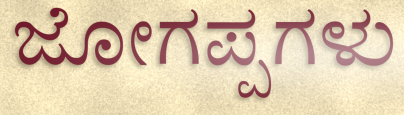
ಜೋಗಪ್ಪಗಳು